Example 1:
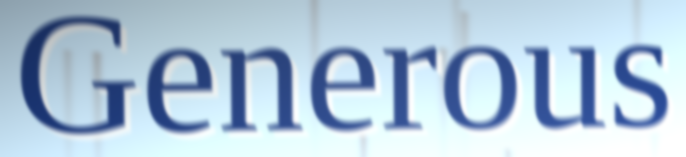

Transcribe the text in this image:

Generous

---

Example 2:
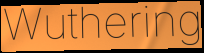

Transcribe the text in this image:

Wuthering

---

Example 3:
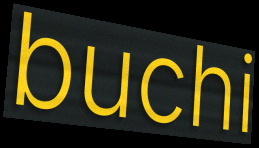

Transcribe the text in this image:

buchi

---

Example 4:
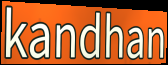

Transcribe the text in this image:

kandhan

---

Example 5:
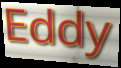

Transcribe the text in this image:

Eddy